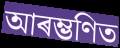
আৰম্ভণিত